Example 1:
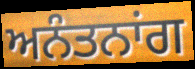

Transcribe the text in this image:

ਅਨੰਤਨਾਂਗ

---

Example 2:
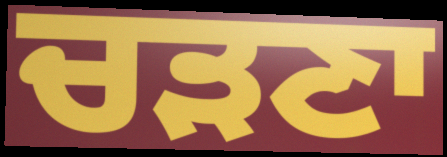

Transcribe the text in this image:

ਚੜਣਾ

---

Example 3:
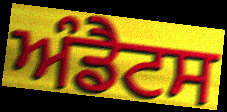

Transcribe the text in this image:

ਅੰਡੈਟਸ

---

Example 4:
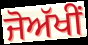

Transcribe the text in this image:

ਜੋਅੱਖੀਂ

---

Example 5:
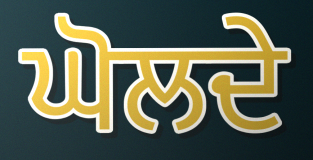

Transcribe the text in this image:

ਘੋਲਦੇ